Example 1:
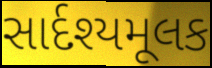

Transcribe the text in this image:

સાર્દશ્યમૂલક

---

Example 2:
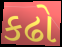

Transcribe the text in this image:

કઢો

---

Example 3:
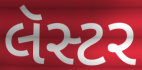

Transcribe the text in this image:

લૅસ્ટર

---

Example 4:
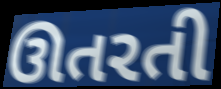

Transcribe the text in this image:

ઊતરતી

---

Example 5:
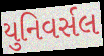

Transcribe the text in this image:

યુનિવર્સલ